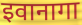
इवानागा